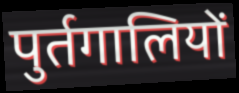
पुर्तगालियों